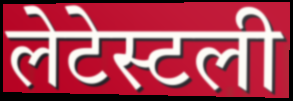
लेटेस्टली